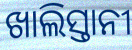
ଖାଲିସ୍ତାନୀ